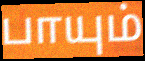
பாயும்